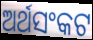
ଅର୍ଥସଂକଟ